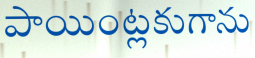
పాయింట్లకుగాను